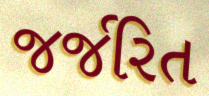
જર્જરિત